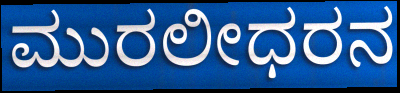
ಮುರಲೀಧರನ